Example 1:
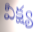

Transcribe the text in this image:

వీక్ష్య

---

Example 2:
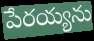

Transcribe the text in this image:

పేరయ్యను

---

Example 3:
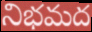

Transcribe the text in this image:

నిభమద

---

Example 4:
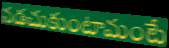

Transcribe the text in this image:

నడచుకుంటామంటే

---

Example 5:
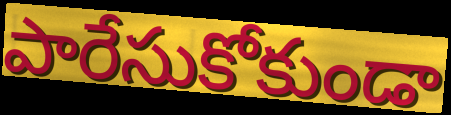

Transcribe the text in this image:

పారేసుకోకుండా